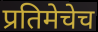
प्रतिमेचेच